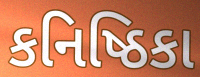
કનિષ્ઠિકા